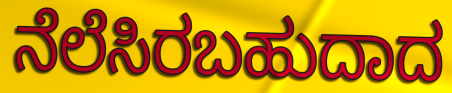
ನೆಲೆಸಿರಬಹುದಾದ